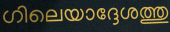
ഗിലെയാദ്ദേശത്തു